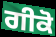
ਗੀਕੋ